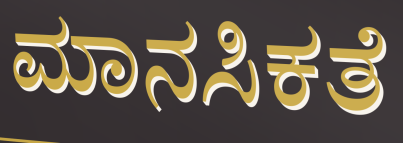
ಮಾನಸಿಕತೆ